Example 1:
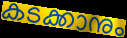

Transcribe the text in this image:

കടക്കാനും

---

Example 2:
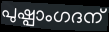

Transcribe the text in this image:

പുഷ്പാംഗദന്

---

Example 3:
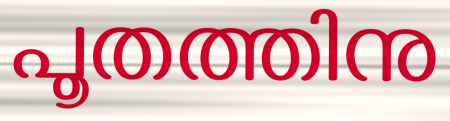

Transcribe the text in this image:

പൂതത്തിനു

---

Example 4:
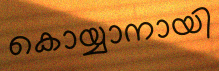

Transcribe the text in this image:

കൊയ്യാനായി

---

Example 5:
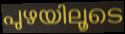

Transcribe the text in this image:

പുഴയിലൂടെ